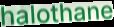
halothane